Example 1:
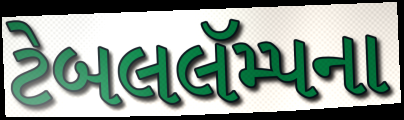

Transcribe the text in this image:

ટેબલલૅમ્પના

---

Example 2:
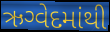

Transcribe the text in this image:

ઋગ્વેદમાંથી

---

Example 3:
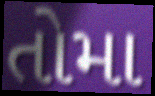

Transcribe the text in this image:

તોમા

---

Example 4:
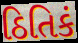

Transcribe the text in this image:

ઠિતિકં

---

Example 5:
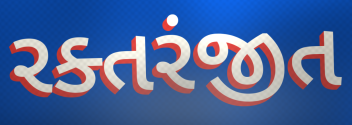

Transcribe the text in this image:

રક્તરંજીત